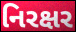
નિરક્ષર